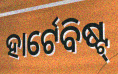
ହାର୍ଟେବିଷ୍ଟ୍